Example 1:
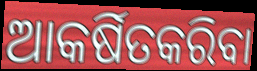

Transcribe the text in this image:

ଆକର୍ଷିତକରିବା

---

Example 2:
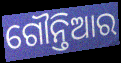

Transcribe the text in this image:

ଗୌନ୍ତିଆର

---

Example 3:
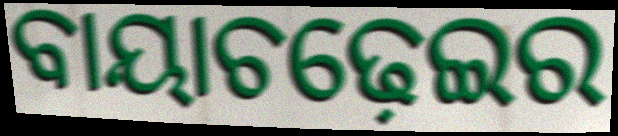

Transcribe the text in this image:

ବାୟାଚଢ଼େଇର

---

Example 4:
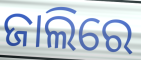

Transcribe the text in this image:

ଜାଲିରେ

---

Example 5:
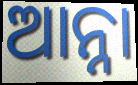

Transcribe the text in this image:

ଆନ୍ନା